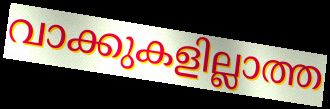
വാക്കുകളില്ലാത്ത